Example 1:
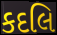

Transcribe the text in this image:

કદલિ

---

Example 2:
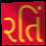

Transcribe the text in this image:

રતિં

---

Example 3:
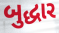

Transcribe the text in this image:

બુદ્ધાર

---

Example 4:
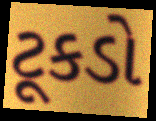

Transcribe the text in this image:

ટૂકડો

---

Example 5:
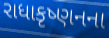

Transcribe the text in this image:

રાધાકૃષ્ણનના